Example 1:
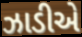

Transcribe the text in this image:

ઝાડીએ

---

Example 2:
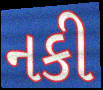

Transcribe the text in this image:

નકી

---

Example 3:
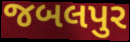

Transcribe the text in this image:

જબલપુર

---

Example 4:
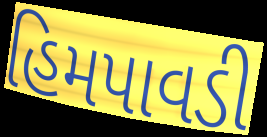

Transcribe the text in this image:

હિમપાવડી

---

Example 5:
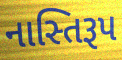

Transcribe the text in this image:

નાસ્તિરૂપ